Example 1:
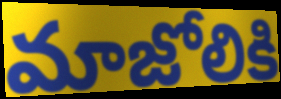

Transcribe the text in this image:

మాజోలికి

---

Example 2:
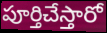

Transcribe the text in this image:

పూర్తిచేస్తారో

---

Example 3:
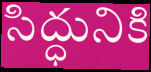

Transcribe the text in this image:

సిద్ధునికి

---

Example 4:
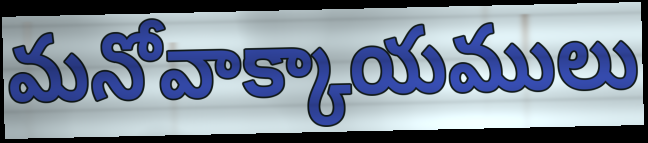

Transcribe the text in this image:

మనోవాక్కాయములు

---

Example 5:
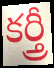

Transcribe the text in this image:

కర్త్రీ